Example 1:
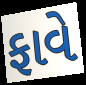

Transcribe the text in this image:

ફાવે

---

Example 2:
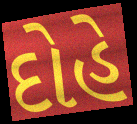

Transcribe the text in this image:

દોહે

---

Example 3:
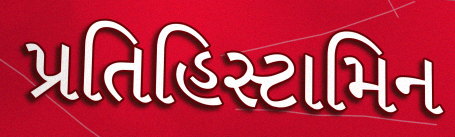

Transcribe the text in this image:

પ્રતિહિસ્ટામિન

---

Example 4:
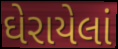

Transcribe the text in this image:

ઘેરાયેલાં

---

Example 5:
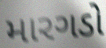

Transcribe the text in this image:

મારગડો